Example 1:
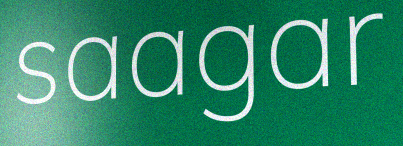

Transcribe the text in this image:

saagar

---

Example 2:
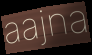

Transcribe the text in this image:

aajna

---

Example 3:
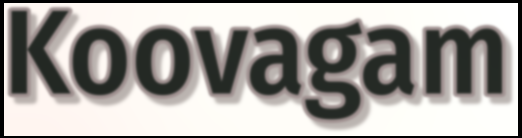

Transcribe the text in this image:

Koovagam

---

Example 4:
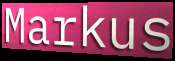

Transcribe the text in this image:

Markus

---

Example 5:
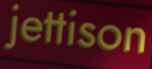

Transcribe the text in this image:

jettison